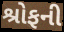
શ્રોફની